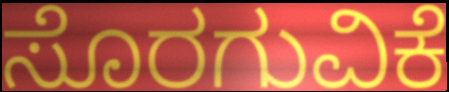
ಸೊರಗುವಿಕೆ